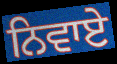
ਨਿਵਾਏ